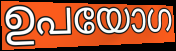
ഉപയോഗ